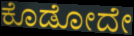
ಕೊಡೋದೇ